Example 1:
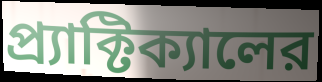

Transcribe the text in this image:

প্র্যাক্টিক্যালের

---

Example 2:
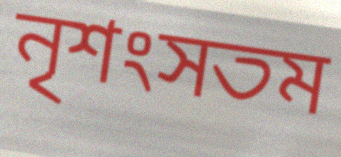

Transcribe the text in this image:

নৃশংসতম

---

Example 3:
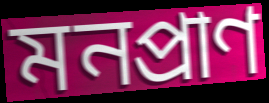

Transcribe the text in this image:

মনপ্রাণ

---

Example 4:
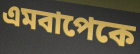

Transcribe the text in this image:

এমবাপেকে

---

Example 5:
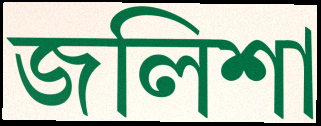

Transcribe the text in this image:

জলিশা